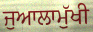
ਜੁਆਲਾਮੁੱਖੀ